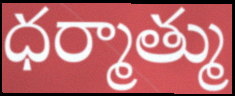
ధర్మాత్ము